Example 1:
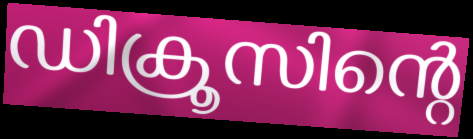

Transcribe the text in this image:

ഡിക്രൂസിന്റെ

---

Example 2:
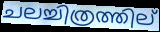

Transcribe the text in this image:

ചലച്ചിത്രത്തില്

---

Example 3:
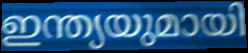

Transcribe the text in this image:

ഇന്ത്യയുമായി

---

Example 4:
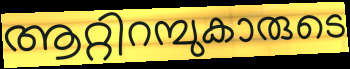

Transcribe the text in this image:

ആറ്റിറമ്പുകാരുടെ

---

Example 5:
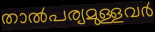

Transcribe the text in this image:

താൽപര്യമുള്ളവർ